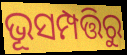
ଭୂସମ୍ପତ୍ତିରୁ